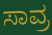
ಸಾವ್ರ